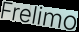
Frelimo